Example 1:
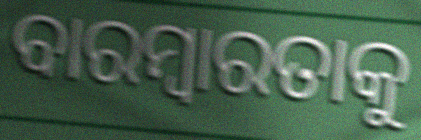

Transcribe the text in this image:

ବାରମ୍ବାରତାକୁ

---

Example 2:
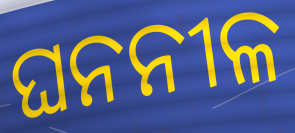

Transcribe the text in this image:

ଘନନୀଳ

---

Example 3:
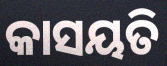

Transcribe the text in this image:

କାସୟତି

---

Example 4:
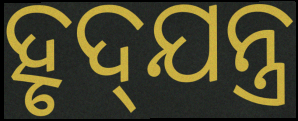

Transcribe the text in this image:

ହୃଦ୍‌ଯନ୍ତ୍ର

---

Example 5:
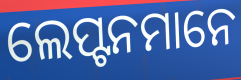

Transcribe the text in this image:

ଲେପ୍ଟନମାନେ